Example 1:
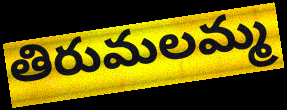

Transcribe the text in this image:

తిరుమలమ్మ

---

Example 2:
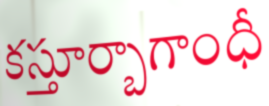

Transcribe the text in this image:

కస్తూర్బాగాంధీ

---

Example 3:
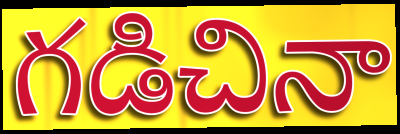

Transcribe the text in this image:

గడిచినా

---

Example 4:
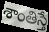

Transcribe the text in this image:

శాంతిస్తే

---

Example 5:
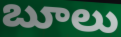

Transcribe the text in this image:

బూలు